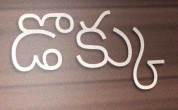
డొక్కు